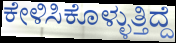
ಕೇಳಿಸಿಕೊಳ್ಳುತ್ತಿದ್ದೆ